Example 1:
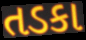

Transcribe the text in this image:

તડકા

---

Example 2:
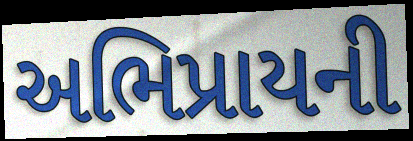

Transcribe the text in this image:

અભિપ્રાયની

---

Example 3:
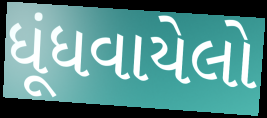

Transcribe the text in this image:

ધૂંધવાયેલો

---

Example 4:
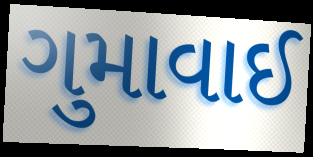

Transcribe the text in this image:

ગુમાવાઈ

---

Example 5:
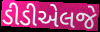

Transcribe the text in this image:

ડીડીએલજે